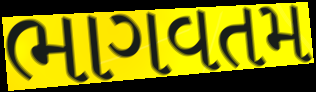
ભાગવતમ